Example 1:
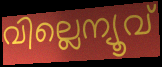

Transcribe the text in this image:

വില്ലെന്യൂവ്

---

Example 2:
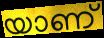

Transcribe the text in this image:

യാണ്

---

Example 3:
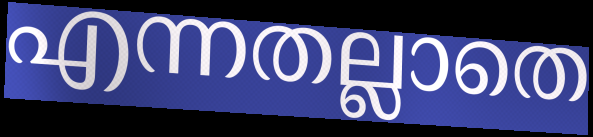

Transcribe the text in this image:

എന്നതല്ലാതെ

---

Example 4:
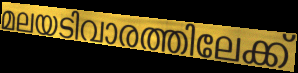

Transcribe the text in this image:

മലയടിവാരത്തിലേക്ക്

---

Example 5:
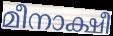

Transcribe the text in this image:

മീനാക്ഷീ